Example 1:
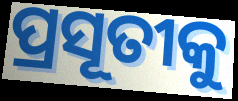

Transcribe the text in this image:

ପ୍ରସୂତୀକୁ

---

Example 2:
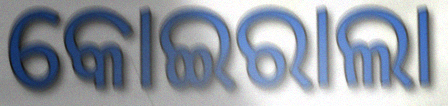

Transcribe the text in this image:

କୋଇରାଲା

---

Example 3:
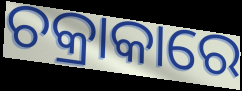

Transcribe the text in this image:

ଚକ୍ରାକାରେ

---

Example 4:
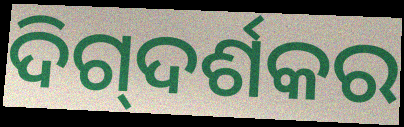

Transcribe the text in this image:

ଦିଗ୍‌ଦର୍ଶକର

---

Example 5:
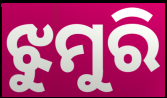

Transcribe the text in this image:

ଝୁମୁରି